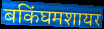
बकिंघमशायर